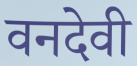
वनदेवी